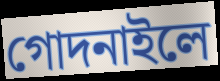
গোদনাইলে